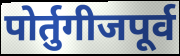
पोर्तुगीजपूर्व